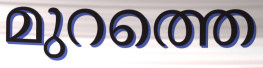
മുറത്തെ